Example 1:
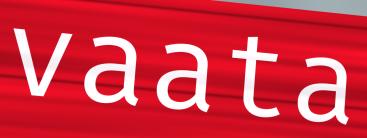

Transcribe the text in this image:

vaata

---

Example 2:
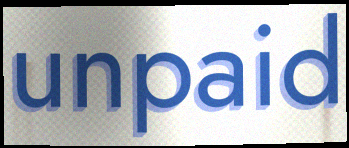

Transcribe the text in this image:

unpaid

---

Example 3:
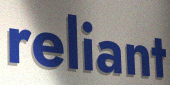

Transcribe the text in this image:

reliant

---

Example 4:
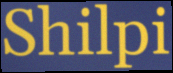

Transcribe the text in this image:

Shilpi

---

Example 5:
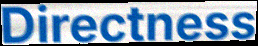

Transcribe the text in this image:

Directness